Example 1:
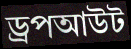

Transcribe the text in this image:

ড্রপআউট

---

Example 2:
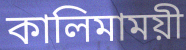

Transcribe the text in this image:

কালিমাময়ী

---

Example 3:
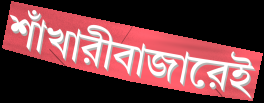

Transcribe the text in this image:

শাঁখারীবাজারেই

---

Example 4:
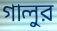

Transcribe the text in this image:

গালুর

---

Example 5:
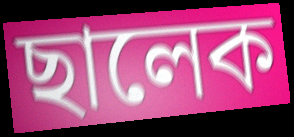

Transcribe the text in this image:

ছালেক